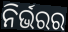
ନିର୍ଭରର